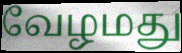
வேழமது